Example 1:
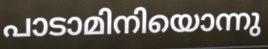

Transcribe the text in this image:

പാടാമിനിയൊന്നു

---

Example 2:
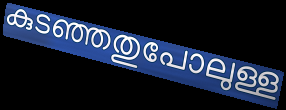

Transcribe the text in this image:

കുടഞ്ഞതുപോലുള്ള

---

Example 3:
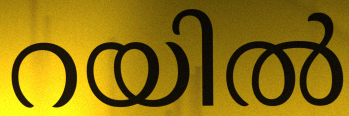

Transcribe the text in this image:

റയിൽ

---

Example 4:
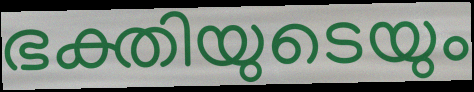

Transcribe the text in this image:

ഭക്തിയുടെയും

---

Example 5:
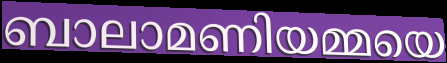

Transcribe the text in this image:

ബാലാമണിയമ്മയെ